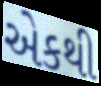
એકથી